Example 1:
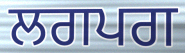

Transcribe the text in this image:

ਲਗਪਗ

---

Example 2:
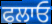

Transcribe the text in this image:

ਫਲਾਓ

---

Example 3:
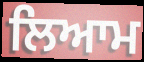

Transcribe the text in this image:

ਲਿਆਮ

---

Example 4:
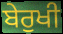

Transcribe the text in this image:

ਬੇਰੁਖੀ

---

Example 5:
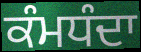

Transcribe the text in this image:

ਕੰਮਧੰਦਾ